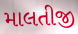
માલતીજી